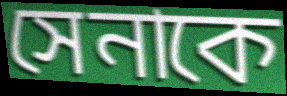
সেনাকে